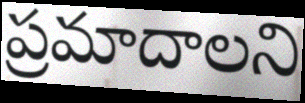
ప్రమాదాలని